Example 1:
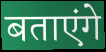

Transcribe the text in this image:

बताएंगे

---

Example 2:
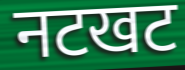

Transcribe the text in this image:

नटखट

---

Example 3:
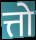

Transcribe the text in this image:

त्तो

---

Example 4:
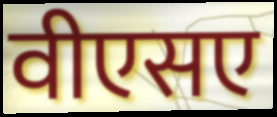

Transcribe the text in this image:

वीएसए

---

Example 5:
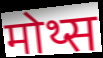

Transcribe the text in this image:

मोथ्स